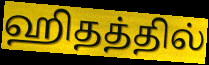
ஹிதத்தில்